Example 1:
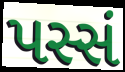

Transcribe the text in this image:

પસ્સં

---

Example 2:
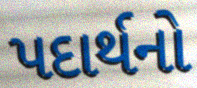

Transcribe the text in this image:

પદાર્થનો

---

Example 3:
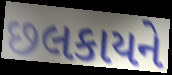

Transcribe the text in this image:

છલકાયને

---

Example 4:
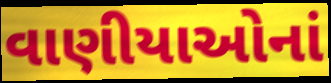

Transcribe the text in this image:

વાણીયાઓનાં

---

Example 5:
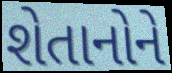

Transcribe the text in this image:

શેતાનોને